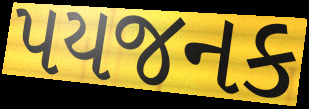
પયજનક